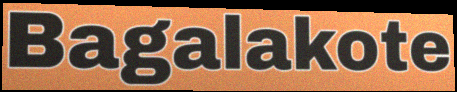
Bagalakote